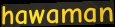
hawaman